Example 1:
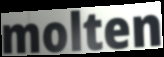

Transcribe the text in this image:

molten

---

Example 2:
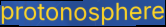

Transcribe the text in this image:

protonosphere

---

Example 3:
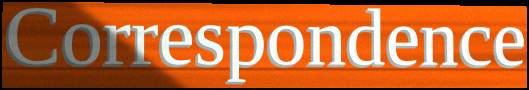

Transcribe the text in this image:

Correspondence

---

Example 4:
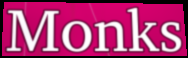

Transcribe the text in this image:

Monks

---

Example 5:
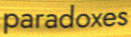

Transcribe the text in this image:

paradoxes